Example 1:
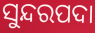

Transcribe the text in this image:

ସୁନ୍ଦରପଦା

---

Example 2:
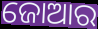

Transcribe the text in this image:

ଜୋଆର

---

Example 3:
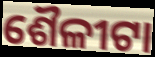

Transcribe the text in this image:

ଶୈଳୀଟା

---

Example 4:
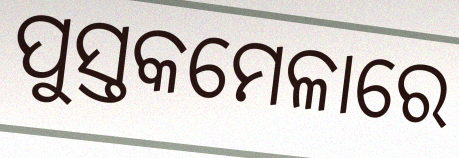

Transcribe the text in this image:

ପୁସ୍ତକମେଳାରେ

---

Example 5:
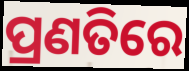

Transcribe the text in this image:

ପ୍ରଣତିରେ